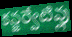
కన్జర్వేటివ్లు